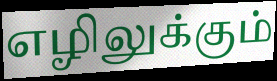
எழிலுக்கும்